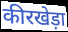
कीरखेड़ा